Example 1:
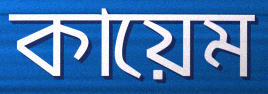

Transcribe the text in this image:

কায়েম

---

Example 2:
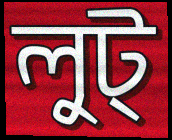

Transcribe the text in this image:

লুট্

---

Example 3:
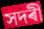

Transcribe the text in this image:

সদৰী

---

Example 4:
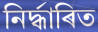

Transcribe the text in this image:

নিৰ্দ্ধাৰিত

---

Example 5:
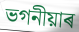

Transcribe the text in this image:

ভগনীয়াৰ